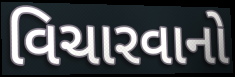
વિચારવાનો